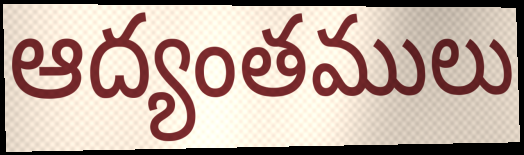
ఆద్యంతములు